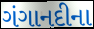
ગંગાનદીના